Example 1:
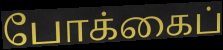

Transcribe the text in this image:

போக்கைப்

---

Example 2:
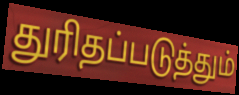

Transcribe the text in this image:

துரிதப்படுத்தும்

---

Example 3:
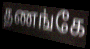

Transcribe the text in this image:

தணங்கே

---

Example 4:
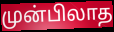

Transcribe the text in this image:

முன்பிலாத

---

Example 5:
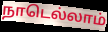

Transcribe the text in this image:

நாடெல்லாம்